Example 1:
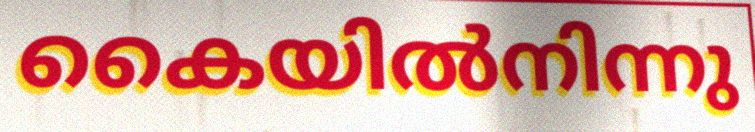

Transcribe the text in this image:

കൈയിൽനിന്നു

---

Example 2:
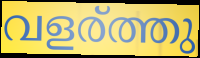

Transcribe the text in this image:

വളര്ത്തു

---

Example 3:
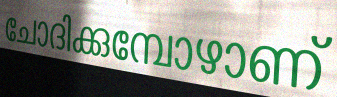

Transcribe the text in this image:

ചോദിക്കുമ്പോഴാണ്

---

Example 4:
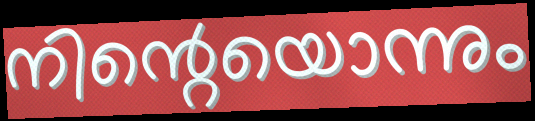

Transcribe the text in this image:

നിന്റെയൊന്നും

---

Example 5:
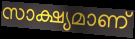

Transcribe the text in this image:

സാക്ഷ്യമാണ്